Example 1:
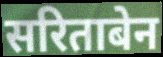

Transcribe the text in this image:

सरिताबेन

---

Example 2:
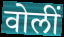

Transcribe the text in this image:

वोलीं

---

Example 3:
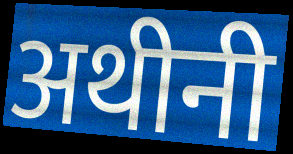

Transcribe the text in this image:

अथीनी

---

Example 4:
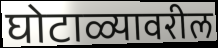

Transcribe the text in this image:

घोटाळ्यावरील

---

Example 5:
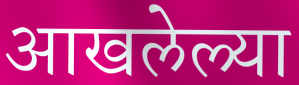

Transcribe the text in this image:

आखलेल्या